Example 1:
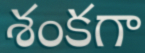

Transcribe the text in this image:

శంకగా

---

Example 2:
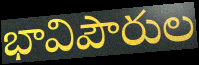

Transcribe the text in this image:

భావిపౌరుల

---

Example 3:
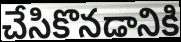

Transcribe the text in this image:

చేసికొనడానికి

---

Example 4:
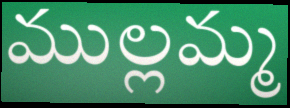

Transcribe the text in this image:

ముల్లమ్మ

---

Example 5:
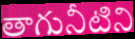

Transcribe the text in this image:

తాగునీటిని